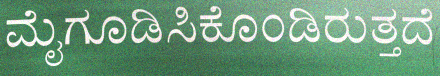
ಮೈಗೂಡಿಸಿಕೊಂಡಿರುತ್ತದೆ